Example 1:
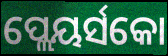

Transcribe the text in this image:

ପ୍ଲେୟର୍ସକୋ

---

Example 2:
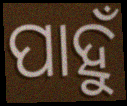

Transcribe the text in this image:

ପାହୁଁ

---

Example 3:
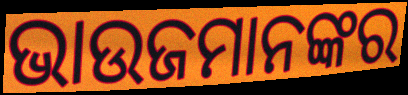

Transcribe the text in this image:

ଭାଉଜମାନଙ୍କର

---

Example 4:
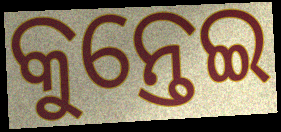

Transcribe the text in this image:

କୁନ୍ତେଇ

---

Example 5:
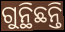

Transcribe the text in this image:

ଗୁନ୍ଥିଛନ୍ତି